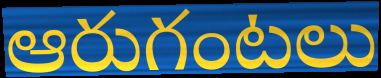
ఆరుగంటలు